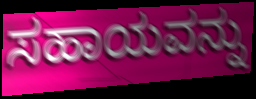
ಸಹಾಯವನ್ನು